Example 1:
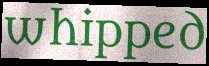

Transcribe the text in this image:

whipped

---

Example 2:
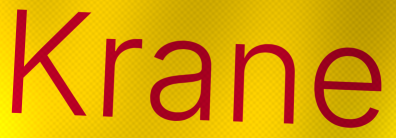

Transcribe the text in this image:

Krane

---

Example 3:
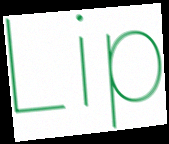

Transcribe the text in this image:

Lip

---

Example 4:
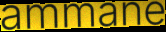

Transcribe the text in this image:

ammane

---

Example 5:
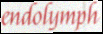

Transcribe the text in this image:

endolymph